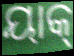
ୟାକ୍